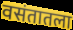
वसंतातला